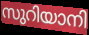
സുറിയാനി